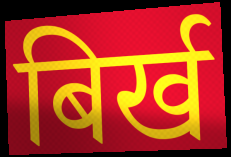
बिर्ख